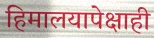
हिमालयापेक्षाही